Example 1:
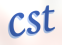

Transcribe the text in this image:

cst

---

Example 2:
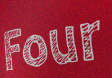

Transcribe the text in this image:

Four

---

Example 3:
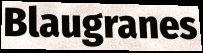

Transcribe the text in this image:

Blaugranes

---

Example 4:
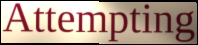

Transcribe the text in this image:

Attempting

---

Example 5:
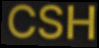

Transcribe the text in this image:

CSH